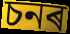
চনৰ